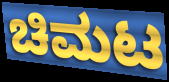
ಚಿಮಟ